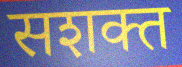
सशक्त